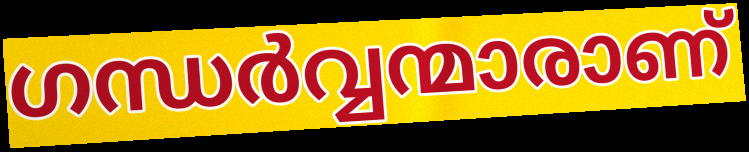
ഗന്ധർവ്വന്മാരാണ്